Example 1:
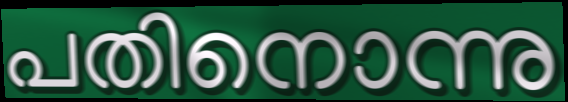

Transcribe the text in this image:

പതിനൊന്നു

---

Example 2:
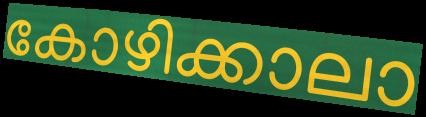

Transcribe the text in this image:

കോഴിക്കാലാ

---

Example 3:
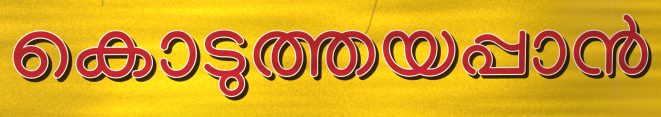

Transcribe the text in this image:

കൊടുത്തയപ്പാൻ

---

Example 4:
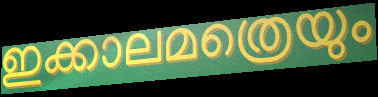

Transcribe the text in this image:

ഇക്കാലമത്രെയും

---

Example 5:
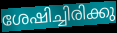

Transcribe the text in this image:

ശേഷിച്ചിരിക്കു